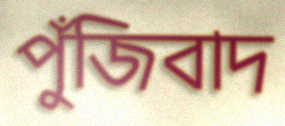
পুঁজিবাদ